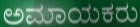
ಅಮಾಯಕರು